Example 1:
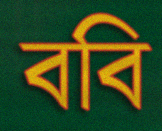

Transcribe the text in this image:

ববি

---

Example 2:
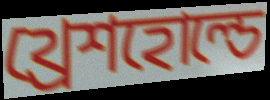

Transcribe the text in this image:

থ্রেশহোল্ডে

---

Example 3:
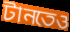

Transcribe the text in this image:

টানতেও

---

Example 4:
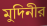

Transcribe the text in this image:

মুদিনীর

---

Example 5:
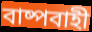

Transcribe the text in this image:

বাষ্পবাহী